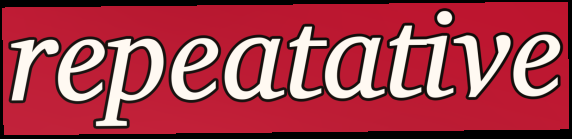
repeatative